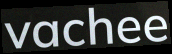
vachee